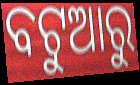
ବଟୁଆରୁ